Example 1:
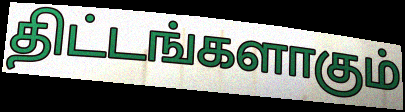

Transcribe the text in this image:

திட்டங்களாகும்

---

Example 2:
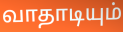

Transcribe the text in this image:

வாதாடியும்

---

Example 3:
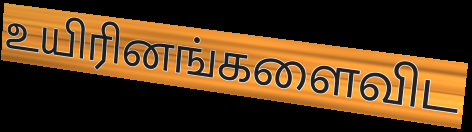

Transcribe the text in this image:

உயிரினங்களைவிட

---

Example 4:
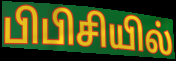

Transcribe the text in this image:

பிபிசியில்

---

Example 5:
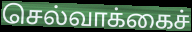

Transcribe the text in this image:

செல்வாக்கைச்